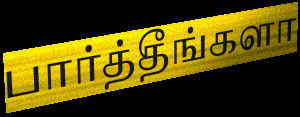
பார்த்தீங்களா